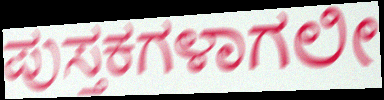
ಪುಸ್ತಕಗಳಾಗಲೀ